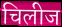
चिलीज